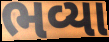
ભવ્યા